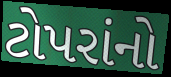
ટોપરાંનો